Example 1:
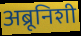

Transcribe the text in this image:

अब्रूनिशी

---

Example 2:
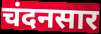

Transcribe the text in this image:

चंदनसार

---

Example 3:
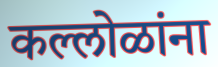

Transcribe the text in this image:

कल्लोळांना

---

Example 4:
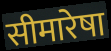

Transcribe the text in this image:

सीमारेषा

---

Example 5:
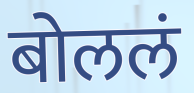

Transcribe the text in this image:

बोललं